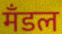
मँडल